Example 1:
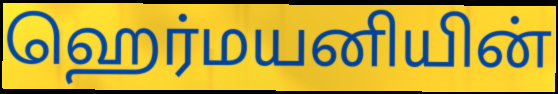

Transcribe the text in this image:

ஹெர்மயனியின்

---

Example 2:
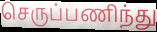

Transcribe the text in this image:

செருப்பணிந்து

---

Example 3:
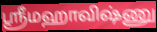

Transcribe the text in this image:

ஸ்ரீமஹாவிஷ்ணு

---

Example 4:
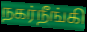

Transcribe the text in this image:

நகர்நீங்கி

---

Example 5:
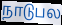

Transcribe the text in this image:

நாடுபல